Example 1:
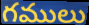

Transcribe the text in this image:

గములు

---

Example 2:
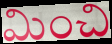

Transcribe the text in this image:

మించి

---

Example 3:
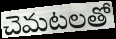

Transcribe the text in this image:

చెమటలతో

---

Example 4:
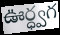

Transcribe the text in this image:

ఊర్ధ్వగ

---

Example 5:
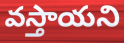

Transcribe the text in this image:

వస్తాయని